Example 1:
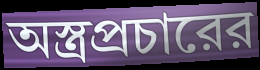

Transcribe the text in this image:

অস্ত্রপ্রচারের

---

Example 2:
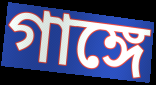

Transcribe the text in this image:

গাঙ্গে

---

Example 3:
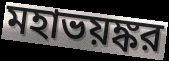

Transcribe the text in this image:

মহাভয়ঙ্কর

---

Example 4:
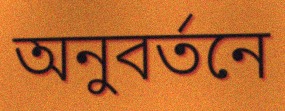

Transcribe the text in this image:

অনুবর্তনে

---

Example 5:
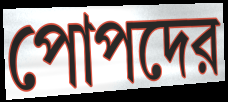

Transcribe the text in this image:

পোপদের